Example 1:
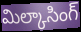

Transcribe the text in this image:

మిల్కాసింగ్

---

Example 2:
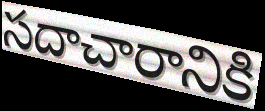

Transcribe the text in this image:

సదాచారానికి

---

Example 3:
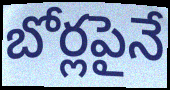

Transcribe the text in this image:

బోర్లపైనే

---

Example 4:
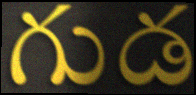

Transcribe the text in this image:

గుడ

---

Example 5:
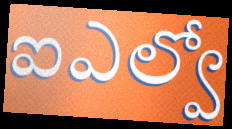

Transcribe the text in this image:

ఐఎల్వో